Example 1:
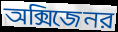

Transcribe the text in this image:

অক্সিজেনর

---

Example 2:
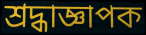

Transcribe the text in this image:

শ্রদ্ধাজ্ঞাপক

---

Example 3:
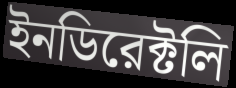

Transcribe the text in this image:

ইনডিরেক্টলি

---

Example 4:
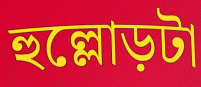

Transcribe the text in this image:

হুল্লোড়টা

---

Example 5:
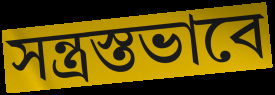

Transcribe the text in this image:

সন্ত্রস্তভাবে